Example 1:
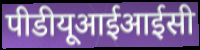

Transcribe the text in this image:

पीडीयूआईआईसी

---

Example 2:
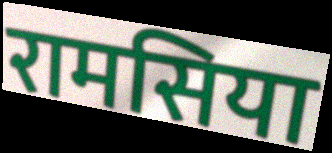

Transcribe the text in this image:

रामसिया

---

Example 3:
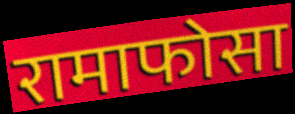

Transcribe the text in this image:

रामाफोसा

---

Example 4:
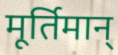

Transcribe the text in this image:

मूर्तिमान्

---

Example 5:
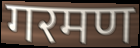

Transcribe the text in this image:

गरमण